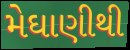
મેઘાણીથી